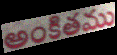
అంకితము